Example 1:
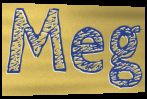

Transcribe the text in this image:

Meg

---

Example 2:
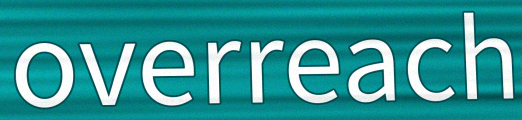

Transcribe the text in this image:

overreach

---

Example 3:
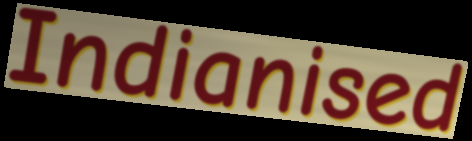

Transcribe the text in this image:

Indianised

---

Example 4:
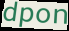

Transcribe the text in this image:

dpon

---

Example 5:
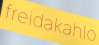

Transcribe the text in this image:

freidakahlo